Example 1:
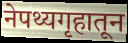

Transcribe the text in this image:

नेपथ्यगृहातून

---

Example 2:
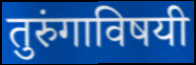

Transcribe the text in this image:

तुरुंगाविषयी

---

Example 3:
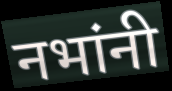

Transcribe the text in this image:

नभांनी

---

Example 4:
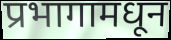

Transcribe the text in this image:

प्रभागामधून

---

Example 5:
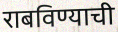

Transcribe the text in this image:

राबविण्याची